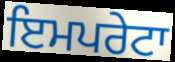
ਇਮਪਰੇਟਾ